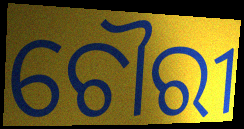
ଚୌରୀ